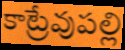
కాట్రేవుపల్లి